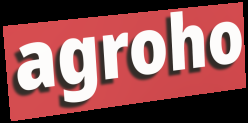
agroho